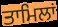
ਤਾਮਿਲਾਂ